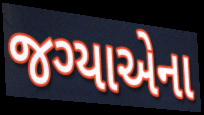
જગ્યાએના